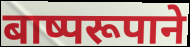
बाष्परूपाने